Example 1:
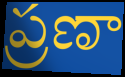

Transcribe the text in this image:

ప్రణా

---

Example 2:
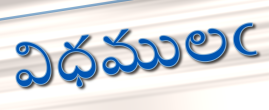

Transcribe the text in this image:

విధములఁ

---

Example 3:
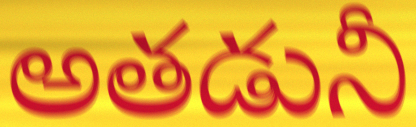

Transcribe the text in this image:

అతడునీ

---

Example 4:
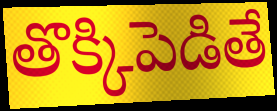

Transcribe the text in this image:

తొక్కిపెడితే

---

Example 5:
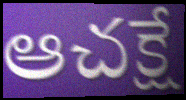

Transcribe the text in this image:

ఆచక్షే